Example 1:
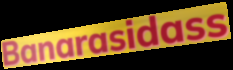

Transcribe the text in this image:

Banarasidass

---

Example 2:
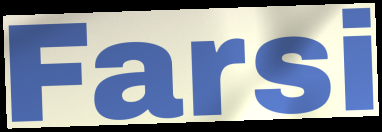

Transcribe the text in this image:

Farsi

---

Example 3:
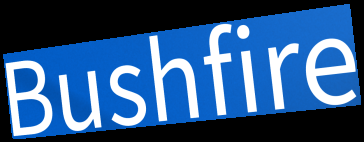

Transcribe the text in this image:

Bushfire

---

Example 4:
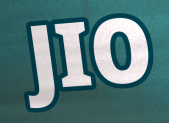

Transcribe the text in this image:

JIO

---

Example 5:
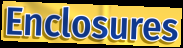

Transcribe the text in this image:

Enclosures